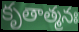
కృతాత్మనః